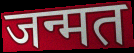
जन्मत